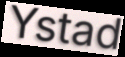
Ystad